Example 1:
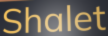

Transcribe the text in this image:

Shalet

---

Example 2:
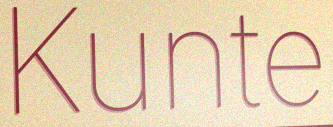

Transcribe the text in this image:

Kunte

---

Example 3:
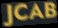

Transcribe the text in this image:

JCAB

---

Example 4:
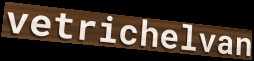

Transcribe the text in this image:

vetrichelvan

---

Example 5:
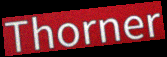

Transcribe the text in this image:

Thorner